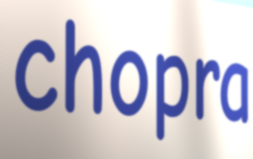
chopra